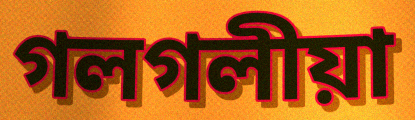
গলগলীয়া